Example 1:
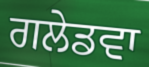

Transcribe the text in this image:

ਗਲੇਡਵਾ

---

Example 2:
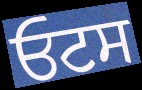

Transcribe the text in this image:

ਓਟਸ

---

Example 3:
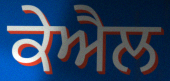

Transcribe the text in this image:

ਕੇਐਲ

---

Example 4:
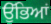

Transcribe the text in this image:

ਉੱਭਿਆਂ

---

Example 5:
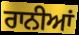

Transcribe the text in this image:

ਰਾਨੀਆਂ